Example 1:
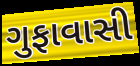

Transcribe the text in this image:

ગુફાવાસી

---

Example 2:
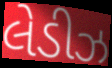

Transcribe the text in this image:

લેડીઝ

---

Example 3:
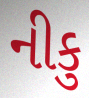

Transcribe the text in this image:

નીકુ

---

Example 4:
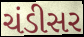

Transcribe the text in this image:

ચંડીસર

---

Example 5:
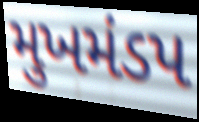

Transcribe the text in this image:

મુખમંડપ